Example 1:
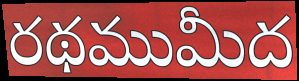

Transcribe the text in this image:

రథముమీద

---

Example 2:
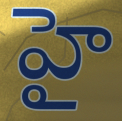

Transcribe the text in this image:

హై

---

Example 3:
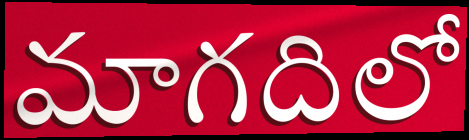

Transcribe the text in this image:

మాగదిలో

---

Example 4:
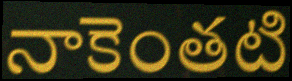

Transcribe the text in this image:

నాకెంతటి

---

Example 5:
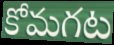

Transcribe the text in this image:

కోమగట